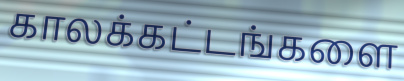
காலக்கட்டங்களை